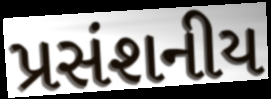
પ્રસંશનીય